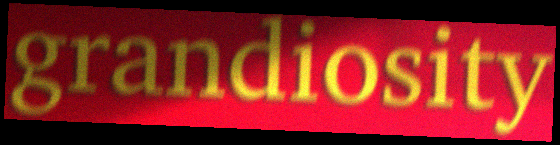
grandiosity